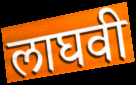
लाघवी